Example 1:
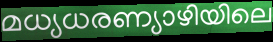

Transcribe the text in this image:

മധ്യധരണ്യാഴിയിലെ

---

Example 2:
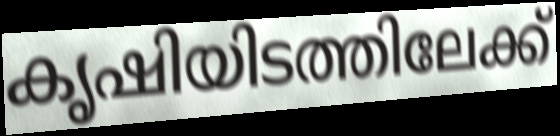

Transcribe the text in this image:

കൃഷിയിടത്തിലേക്ക്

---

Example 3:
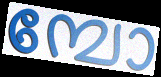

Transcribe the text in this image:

മ്പോ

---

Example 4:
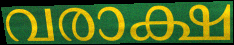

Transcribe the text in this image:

വരാക്ഷ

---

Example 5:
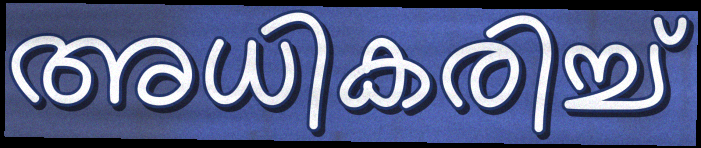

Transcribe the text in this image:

അധികരിച്ച്